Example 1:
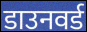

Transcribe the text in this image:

डाउनवर्ड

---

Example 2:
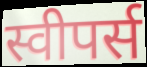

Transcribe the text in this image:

स्वीपर्स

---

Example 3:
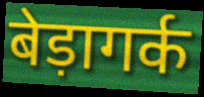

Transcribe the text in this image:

बेड़ागर्क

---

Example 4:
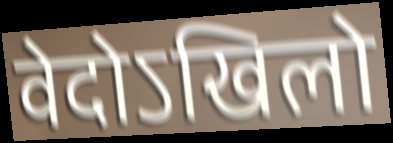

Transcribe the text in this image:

वेदोऽखिलो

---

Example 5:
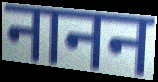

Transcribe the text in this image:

नानन